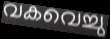
വകവെച്ചു